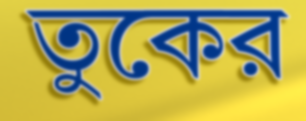
তুকের